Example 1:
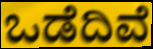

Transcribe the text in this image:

ಒಡೆದಿವೆ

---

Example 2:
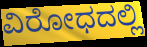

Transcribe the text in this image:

ವಿರೋಧದಲ್ಲಿ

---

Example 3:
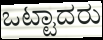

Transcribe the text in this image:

ಒಟ್ಟಾದರು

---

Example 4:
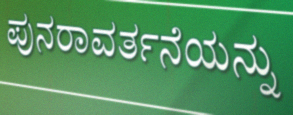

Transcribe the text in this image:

ಪುನರಾವರ್ತನೆಯನ್ನು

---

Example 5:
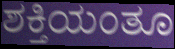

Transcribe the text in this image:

ಶಕ್ತಿಯಂತೂ